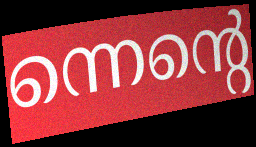
ന്നെന്റെ